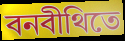
বনবীথিতে